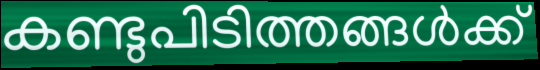
കണ്ടുപിടിത്തങ്ങൾക്ക്